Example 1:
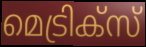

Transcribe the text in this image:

മെട്രിക്സ്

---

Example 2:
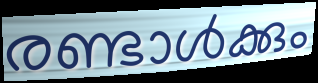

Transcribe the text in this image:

രണ്ടാൾക്കും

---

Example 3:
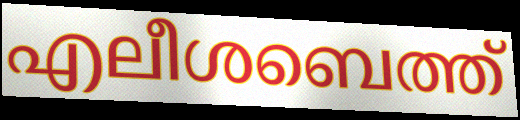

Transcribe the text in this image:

എലീശബെത്ത്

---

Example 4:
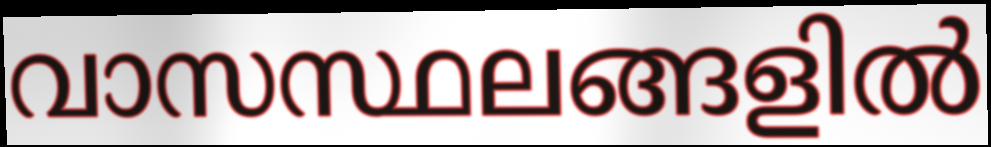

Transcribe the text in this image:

വാസസ്ഥലങ്ങളിൽ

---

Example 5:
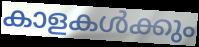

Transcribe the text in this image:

കാളകൾക്കും